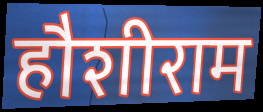
हौशीराम